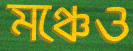
মঞ্চেও